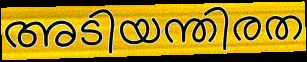
അടിയന്തിരത